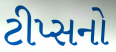
ટીપ્સનો